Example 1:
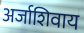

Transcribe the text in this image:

अर्जाशिवाय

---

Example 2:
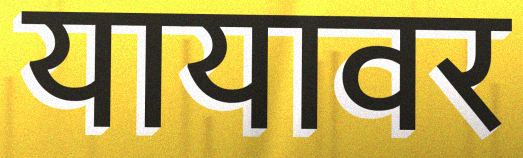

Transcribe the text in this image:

यायावर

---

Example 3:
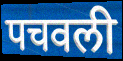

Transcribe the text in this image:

पचवली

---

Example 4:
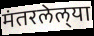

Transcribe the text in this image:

मंतरलेल्या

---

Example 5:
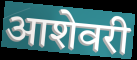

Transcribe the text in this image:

आशेवरी